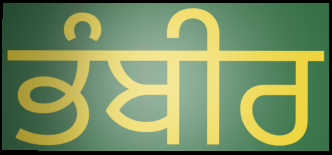
ਭੰਬੀਰ